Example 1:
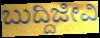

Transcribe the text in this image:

ಬುದ್ದಿಜೀವಿ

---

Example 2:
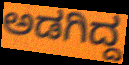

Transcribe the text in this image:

ಅಡಗಿದ್ದ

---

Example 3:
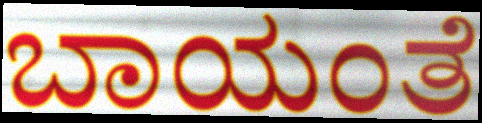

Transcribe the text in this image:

ಬಾಯಂತೆ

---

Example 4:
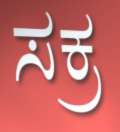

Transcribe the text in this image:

ಸಕ್ರ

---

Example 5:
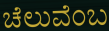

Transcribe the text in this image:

ಚೆಲುವೆಂಬ